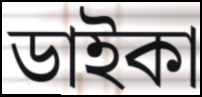
ডাইকা